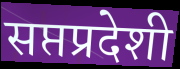
सप्तप्रदेशी